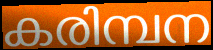
കരിമ്പന